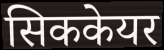
सिककेयर